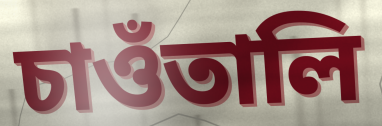
চাওঁতালি